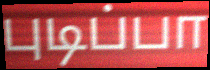
புடிப்பா